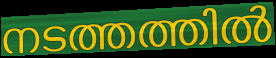
നടത്തത്തിൽ